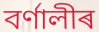
বৰ্ণালীৰ